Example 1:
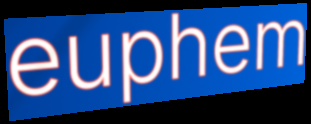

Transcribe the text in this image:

euphem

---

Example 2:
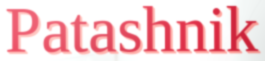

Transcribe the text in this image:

Patashnik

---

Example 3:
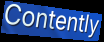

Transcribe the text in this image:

Contently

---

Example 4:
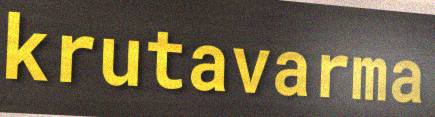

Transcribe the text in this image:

krutavarma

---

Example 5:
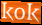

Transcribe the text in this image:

kok